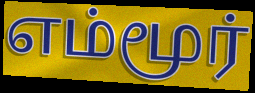
எம்மூர்